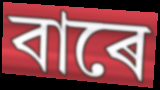
বাৰে